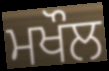
ਮਖੌਲ